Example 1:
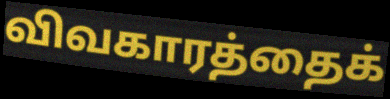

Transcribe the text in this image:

விவகாரத்தைக்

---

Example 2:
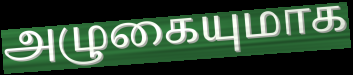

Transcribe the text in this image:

அழுகையுமாக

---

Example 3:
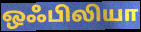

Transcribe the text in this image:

ஒஃபிலியா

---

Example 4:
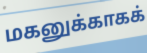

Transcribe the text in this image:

மகனுக்காகக்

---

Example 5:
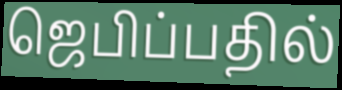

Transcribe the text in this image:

ஜெபிப்பதில்